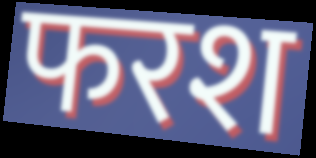
फरश